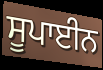
ਸੂਪਾਈਨ